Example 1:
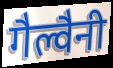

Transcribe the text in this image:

गैल्वैनी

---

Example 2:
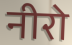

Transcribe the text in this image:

नीरो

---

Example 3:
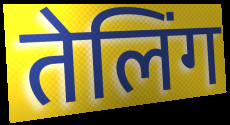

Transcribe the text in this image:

तेलिंग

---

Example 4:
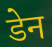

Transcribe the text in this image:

डेन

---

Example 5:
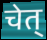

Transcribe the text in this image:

चेत्